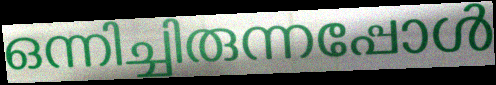
ഒന്നിച്ചിരുന്നപ്പോൾ